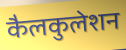
कैलकुलेशन